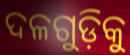
ଦଳଗୁଡ଼ିକୁ